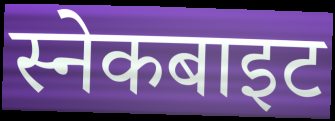
स्नेकबाइट